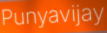
Punyavijay